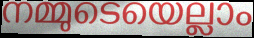
നമ്മുടെയെല്ലാം